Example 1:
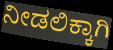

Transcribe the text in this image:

ನೀಡಲಿಕ್ಕಾಗಿ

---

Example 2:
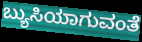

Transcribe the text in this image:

ಬ್ಯುಸಿಯಾಗುವಂತೆ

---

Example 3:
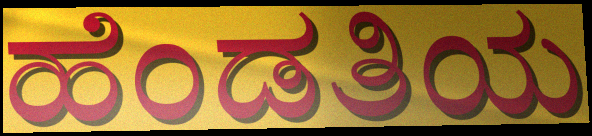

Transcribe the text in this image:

ಹೆಂಡತಿಯ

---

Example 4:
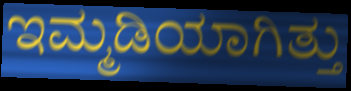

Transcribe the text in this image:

ಇಮ್ಮಡಿಯಾಗಿತ್ತು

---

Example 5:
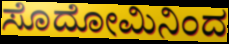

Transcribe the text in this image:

ಸೊದೋಮಿನಿಂದ